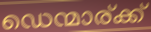
ഡെന്മാര്ക്ക്